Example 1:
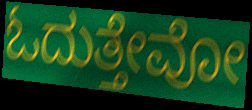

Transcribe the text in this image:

ಓದುತ್ತೇವೋ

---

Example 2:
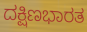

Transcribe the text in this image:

ದಕ್ಷಿಣಭಾರತ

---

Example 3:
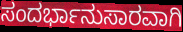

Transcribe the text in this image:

ಸಂದರ್ಭಾನುಸಾರವಾಗಿ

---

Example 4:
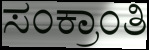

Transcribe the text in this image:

ಸಂಕ್ರಾಂತಿ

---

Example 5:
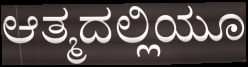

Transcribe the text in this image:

ಆತ್ಮದಲ್ಲಿಯೂ